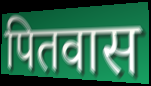
पितवास